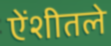
ऐंशीतले